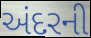
અંદરની